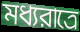
মধ্যরাত্রে